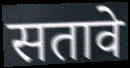
सतावे